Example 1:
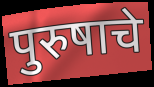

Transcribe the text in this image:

पुरुषाचे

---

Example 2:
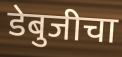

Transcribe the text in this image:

डेबुजीचा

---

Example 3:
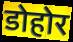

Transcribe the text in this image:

डोहोर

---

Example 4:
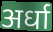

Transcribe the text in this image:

अर्धा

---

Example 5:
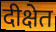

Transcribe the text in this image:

दीक्षेत